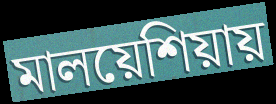
মালয়েশিয়ায়